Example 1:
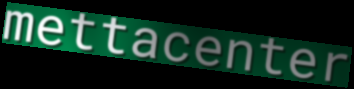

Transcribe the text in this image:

mettacenter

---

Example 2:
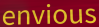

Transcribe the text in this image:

envious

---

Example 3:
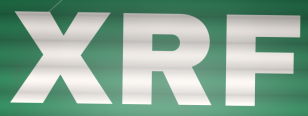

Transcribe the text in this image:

XRF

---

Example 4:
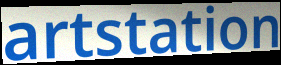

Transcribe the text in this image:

artstation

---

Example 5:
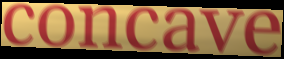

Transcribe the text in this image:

concave